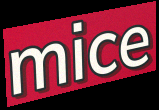
mice